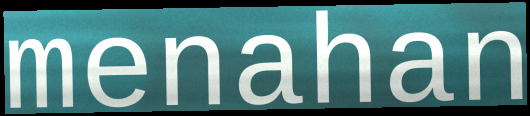
menahan